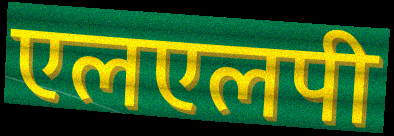
एलएलपी